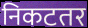
निकटतर